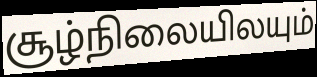
சூழ்நிலையிலயும்